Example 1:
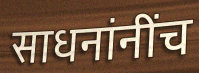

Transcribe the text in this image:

साधनांनींच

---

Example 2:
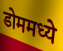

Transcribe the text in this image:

डोममध्ये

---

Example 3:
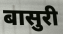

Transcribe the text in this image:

बासुरी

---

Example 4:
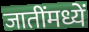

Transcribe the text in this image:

जातींमध्यें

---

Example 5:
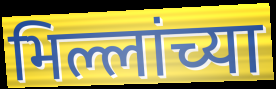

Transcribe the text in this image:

भिल्लांच्या